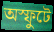
অস্ফুটে